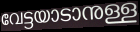
വേട്ടയാടാനുള്ള